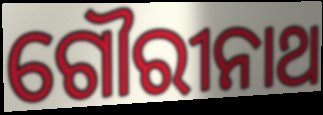
ଗୌରୀନାଥ